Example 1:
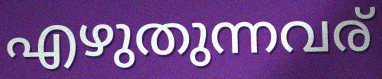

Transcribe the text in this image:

എഴുതുന്നവര്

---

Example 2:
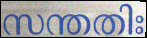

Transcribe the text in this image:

സന്തതിഃ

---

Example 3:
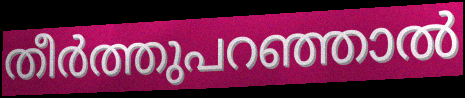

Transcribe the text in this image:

തീർത്തുപറഞ്ഞാൽ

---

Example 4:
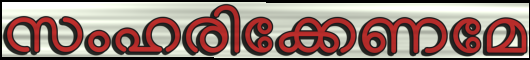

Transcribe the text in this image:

സംഹരിക്കേണമേ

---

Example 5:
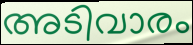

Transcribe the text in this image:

അടിവാരം